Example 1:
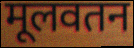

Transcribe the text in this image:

मूलवतन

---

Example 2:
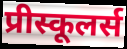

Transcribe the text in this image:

प्रीस्कूलर्स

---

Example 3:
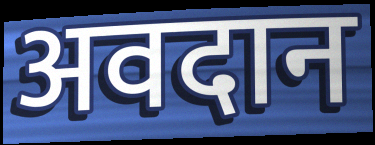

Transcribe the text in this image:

अवदान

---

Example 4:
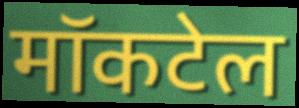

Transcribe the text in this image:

मॉकटेल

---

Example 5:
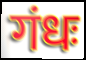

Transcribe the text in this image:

गंधः